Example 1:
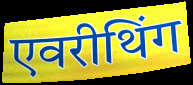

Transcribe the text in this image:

एवरीथिंग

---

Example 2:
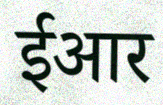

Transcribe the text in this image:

ईआर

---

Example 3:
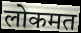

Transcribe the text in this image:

लोकमत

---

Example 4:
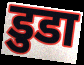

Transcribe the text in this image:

डुडा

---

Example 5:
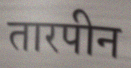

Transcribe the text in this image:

तारपीन